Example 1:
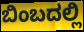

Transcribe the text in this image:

ಬಿಂಬದಲ್ಲಿ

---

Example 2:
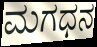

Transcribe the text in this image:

ಮಗಧನ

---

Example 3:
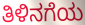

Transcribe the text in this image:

ತಿಳಿನಗೆಯ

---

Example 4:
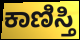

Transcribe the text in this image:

ಕಾಣಿಸ್ತಿ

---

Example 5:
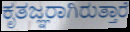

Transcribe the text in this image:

ಕೃತಜ್ಞರಾಗಿರುತ್ತಾರೆ